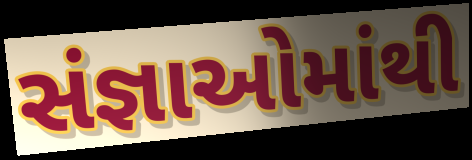
સંજ્ઞાઓમાંથી